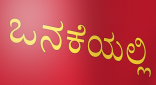
ಒನಕೆಯಲ್ಲಿ